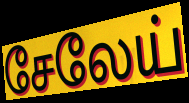
சேலேய்